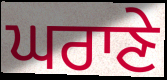
ਘਰਾਣੇ